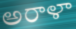
అరాళా